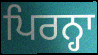
ਪਿਰਨ੍ਹਾ